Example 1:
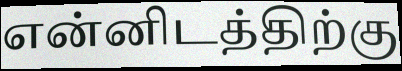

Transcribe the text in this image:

என்னிடத்திற்கு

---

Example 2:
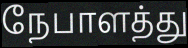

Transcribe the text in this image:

நேபாளத்து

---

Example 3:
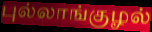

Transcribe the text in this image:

புல்லாங்குழல்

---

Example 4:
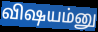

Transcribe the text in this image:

விஷயம்னு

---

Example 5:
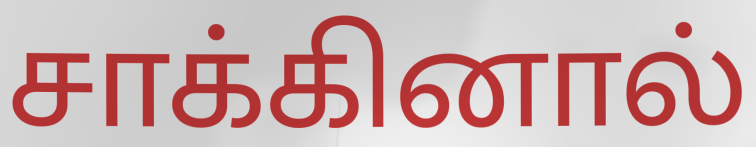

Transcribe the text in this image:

சாக்கினால்